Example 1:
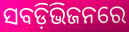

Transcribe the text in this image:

ସବଡ଼ିଭିଜନରେ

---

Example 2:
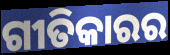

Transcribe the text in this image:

ଗୀତିକାରର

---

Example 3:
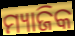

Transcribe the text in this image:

ମ୍ୟାଜିକ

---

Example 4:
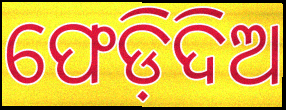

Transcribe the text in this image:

ଫେଡ଼ିଦିଅ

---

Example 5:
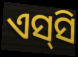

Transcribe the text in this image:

ଏସ୍‍ସି